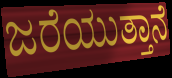
ಜರೆಯುತ್ತಾನೆ